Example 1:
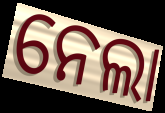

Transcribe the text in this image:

ନେଲା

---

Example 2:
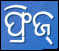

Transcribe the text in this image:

ଫ୍ରିଜ୍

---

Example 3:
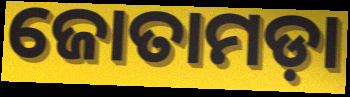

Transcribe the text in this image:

ଜୋତାମଡ଼ା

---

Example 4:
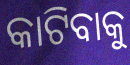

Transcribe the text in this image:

କାଟିବାକୁ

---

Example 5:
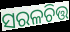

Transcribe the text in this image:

ସରଳଚିତ୍ତ